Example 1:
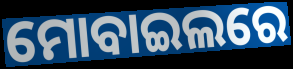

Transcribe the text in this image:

ମୋବାଇଲରେ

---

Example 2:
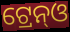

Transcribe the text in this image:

ଟ୍ରେନ୍ଓ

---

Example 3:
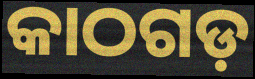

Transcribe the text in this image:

କାଠଗଡ଼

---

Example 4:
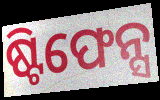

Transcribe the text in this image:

ଷ୍ଟିଫେନ୍ସ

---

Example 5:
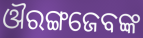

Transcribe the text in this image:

ଔରଙ୍ଗଜେବଙ୍କ